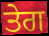
ਤੇਗ